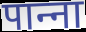
पान्ना